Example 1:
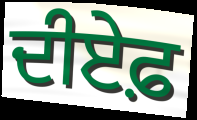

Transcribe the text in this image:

ਦੀਏਫ਼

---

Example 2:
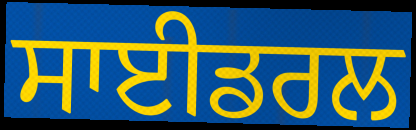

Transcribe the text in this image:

ਸਾਈਡਰਲ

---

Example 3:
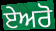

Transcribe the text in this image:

ਏਅਰੋ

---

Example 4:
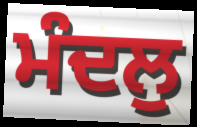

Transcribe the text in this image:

ਮੰਦਲੁ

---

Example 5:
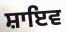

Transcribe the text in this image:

ਸ਼ਾਇਵ